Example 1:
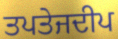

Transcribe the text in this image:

ਤਪਤੇਜਦੀਪ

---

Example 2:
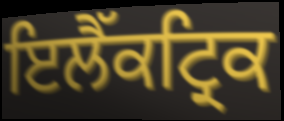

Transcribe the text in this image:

ਇਲੈੱਕਟ੍ਰਿਕ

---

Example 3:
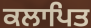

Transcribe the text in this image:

ਕਲਾਪਿਤ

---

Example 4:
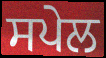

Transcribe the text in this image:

ਸਪੇਲ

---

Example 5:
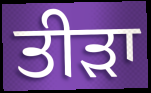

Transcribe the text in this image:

ਤੀੜਾ